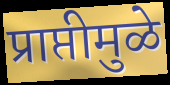
प्राप्तीमुळे